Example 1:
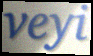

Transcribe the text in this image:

veyi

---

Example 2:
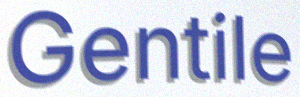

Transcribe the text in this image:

Gentile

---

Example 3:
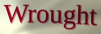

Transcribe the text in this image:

Wrought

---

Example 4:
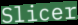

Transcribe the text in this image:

Slicer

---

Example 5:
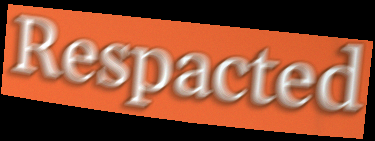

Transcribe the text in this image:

Respacted